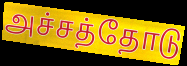
அச்சத்தோடு